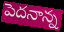
పెదనాన్న